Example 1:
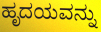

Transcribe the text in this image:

ಹೃದಯವನ್ನು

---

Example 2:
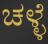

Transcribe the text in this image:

ಚಳ್ಳೆ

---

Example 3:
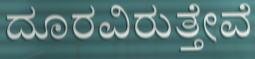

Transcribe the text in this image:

ದೂರವಿರುತ್ತೇವೆ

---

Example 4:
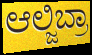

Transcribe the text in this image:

ಆಲ್ಜಿಬ್ರಾ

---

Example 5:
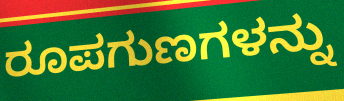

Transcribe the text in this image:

ರೂಪಗುಣಗಳನ್ನು